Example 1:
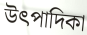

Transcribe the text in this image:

উৎপাদিকা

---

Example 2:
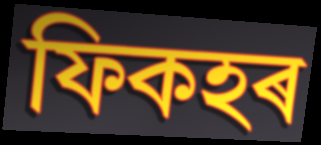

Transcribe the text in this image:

ফিকহৰ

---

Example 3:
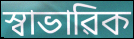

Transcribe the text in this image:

স্বাভাৱিক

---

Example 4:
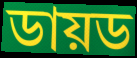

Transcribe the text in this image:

ডায়ড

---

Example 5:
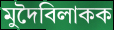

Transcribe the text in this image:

মুদৈবিলাকক